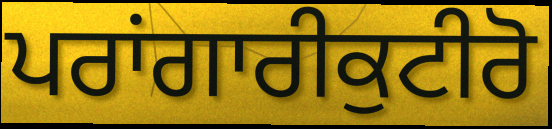
ਪਰਾਂਗਾਰੀਕੁਟੀਰੋ